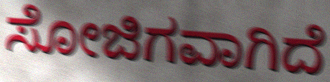
ಸೋಜಿಗವಾಗಿದೆ